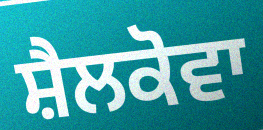
ਸ਼ੈਲਕੋਵਾ